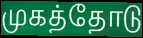
முகத்தோடு